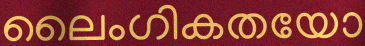
ലൈംഗികതയോ